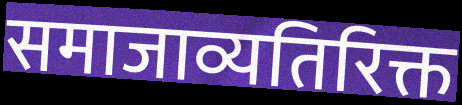
समाजाव्यतिरिक्त